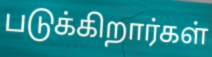
படுக்கிறார்கள்